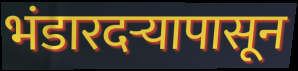
भंडारदऱ्यापासून